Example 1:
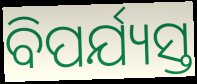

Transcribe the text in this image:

ବିପର୍ଯ୍ୟସ୍ତ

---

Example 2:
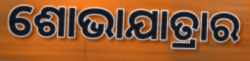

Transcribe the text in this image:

ଶୋଭାଯାତ୍ରାର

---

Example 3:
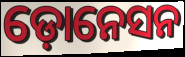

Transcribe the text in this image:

ଡ଼ୋନେସନ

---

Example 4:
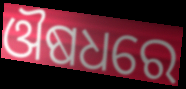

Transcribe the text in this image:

ଔଷଧରେ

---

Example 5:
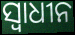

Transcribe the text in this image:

ସ୍ୱାଧୀନ